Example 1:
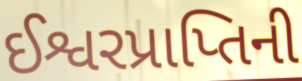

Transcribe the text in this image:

ઈશ્વરપ્રાપ્તિની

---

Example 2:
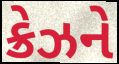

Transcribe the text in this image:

ક્રેઝને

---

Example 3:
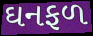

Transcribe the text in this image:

ઘનફળ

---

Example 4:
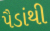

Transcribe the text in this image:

પૈડાંથી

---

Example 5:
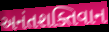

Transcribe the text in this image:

અનંતશક્તિવાન